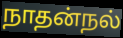
நாதன்நல்